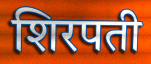
शिरपती